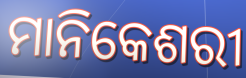
ମାନିକେଶରୀ